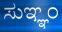
ಸುಞ್ಞಂ